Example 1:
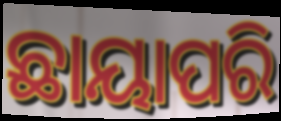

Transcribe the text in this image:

ଛାୟାପରି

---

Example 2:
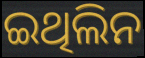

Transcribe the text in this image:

ଇଥିଲିନ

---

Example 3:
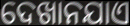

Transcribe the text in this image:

ଦେଖାନଯାଏ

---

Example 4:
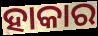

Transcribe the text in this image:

ହାକାର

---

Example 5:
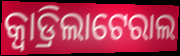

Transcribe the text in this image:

କ୍ୱାଡ୍ରିଲାଟେରାଲ